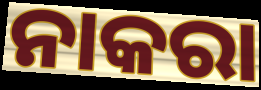
ନାକରା